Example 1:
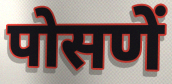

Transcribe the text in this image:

पोसणें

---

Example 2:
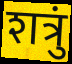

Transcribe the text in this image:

शत्रुं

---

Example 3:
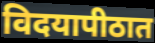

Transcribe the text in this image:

विदयापीठात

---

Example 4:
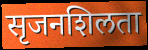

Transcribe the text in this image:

सृजनशिलता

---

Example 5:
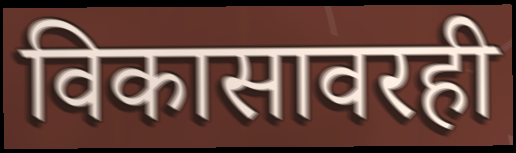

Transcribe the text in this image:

विकासावरही